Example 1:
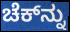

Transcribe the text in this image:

ಚೆಕ್‌ನ್ನು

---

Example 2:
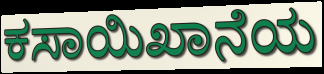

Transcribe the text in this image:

ಕಸಾಯಿಖಾನೆಯ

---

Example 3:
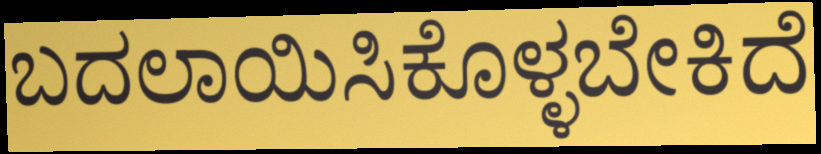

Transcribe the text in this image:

ಬದಲಾಯಿಸಿಕೊಳ್ಳಬೇಕಿದೆ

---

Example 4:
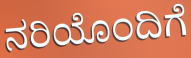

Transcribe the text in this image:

ನರಿಯೊಂದಿಗೆ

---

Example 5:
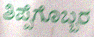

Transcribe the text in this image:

ತಿಪ್ಪೆಗೊಬ್ಬರ